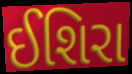
ઈશિરા